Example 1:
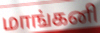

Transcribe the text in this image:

மாங்கனி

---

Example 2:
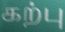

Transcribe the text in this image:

கற்பு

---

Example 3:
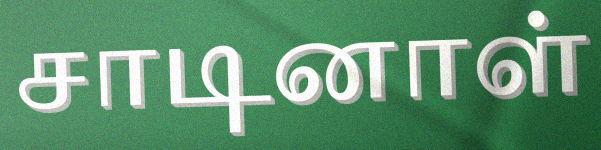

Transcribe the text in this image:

சாடினாள்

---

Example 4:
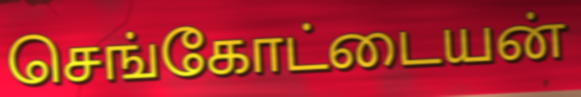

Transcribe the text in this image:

செங்கோட்டையன்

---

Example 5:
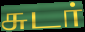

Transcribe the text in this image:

சுடர்